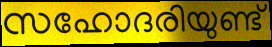
സഹോദരിയുണ്ട്